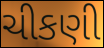
ચીકણી